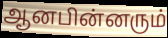
ஆனபின்னரும்